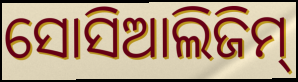
ସୋସିଆଲିଜିମ୍